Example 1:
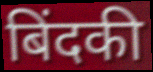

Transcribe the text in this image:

बिंदकी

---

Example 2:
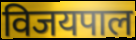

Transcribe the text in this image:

विजयपाल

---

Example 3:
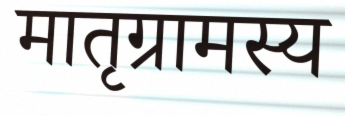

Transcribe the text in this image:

मातृग्रामस्य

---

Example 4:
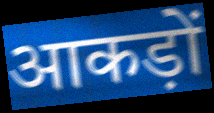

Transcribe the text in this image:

आकड़ों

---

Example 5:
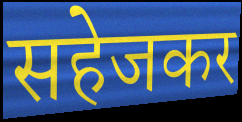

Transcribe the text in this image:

सहेजकर